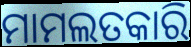
ମାମଲତକାରି